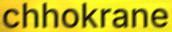
chhokrane